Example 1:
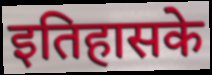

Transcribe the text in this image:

इतिहासके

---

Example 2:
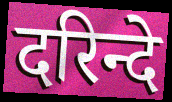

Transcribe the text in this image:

दरिन्दे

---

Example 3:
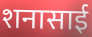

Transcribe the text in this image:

शनासाई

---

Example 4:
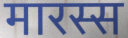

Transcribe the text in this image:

मारस्स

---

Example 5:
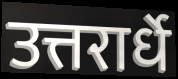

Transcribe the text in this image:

उत्तरार्धे